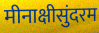
मीनाक्षीसुंदरम